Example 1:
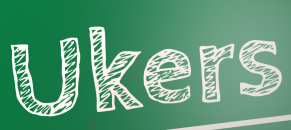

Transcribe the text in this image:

Ukers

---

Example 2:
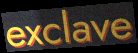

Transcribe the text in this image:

exclave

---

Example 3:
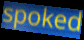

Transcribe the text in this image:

spoked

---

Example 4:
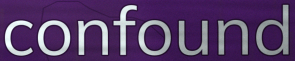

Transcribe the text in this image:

confound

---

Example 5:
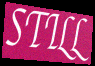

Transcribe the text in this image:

STILL